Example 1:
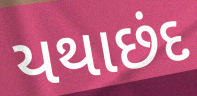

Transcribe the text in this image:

યથાછંદ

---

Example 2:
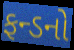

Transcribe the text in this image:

ફન્ડનો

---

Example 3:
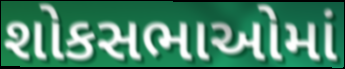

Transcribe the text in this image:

શોકસભાઓમાં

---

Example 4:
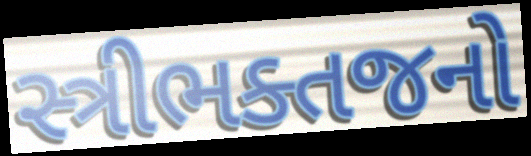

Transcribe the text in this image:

સ્ત્રીભક્તજનો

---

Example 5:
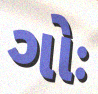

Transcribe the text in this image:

ગોઃ